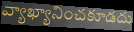
వ్యాఖ్యానించకూడదు